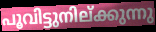
പൂവിട്ടുനില്ക്കുന്നു